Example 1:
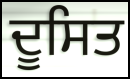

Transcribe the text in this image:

ਦੂਸਿਤ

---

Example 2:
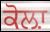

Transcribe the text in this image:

ਕੋਲ਼ਾ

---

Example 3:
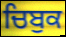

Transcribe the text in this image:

ਚਿਬੁਕ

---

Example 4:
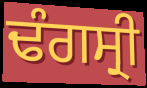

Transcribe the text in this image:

ਢੰਗਸ੍ਰੀ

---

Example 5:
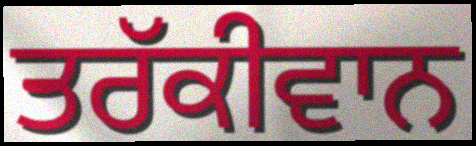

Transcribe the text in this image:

ਤਰੱਕੀਵਾਨ